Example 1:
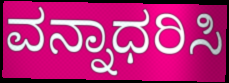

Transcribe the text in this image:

ವನ್ನಾಧರಿಸಿ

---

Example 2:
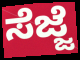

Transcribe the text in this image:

ಸೆಜ್ಜೆ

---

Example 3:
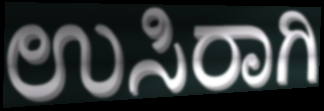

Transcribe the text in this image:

ಉಸಿರಾಗಿ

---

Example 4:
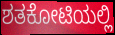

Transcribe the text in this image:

ಶತಕೋಟಿಯಲ್ಲಿ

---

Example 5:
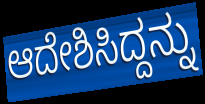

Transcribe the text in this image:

ಆದೇಶಿಸಿದ್ದನ್ನು